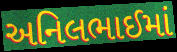
અનિલભાઈમાં